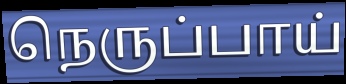
நெருப்பாய்